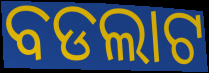
ବଡଲାଟ